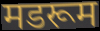
मडरूम